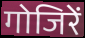
गोजिरें